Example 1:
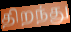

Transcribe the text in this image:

திறந்து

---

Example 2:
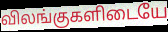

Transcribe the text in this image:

விலங்குகளிடையே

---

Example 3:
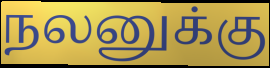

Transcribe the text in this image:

நலனுக்கு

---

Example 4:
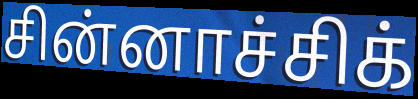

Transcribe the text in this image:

சின்னாச்சிக்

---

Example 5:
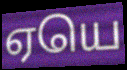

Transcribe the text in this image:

ஏயெ